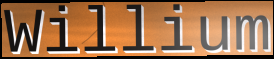
Willium